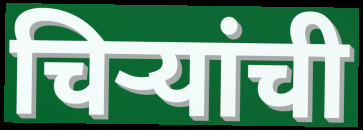
चिऱ्यांची